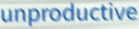
unproductive